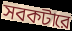
সবকটারে